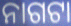
ନାଗଟା